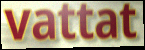
vattat